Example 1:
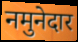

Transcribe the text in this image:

नमुनेदार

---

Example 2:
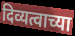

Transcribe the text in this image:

दिव्यत्वाच्या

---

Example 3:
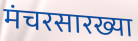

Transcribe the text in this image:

मंचरसारख्या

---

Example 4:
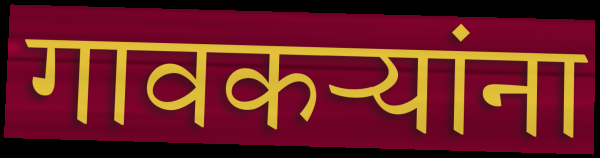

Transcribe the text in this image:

गावकऱ्यांना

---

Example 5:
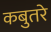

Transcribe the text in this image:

कबुतरे